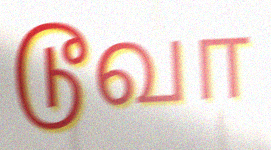
டூவா